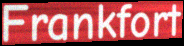
Frankfort